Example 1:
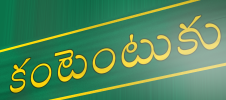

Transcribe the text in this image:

కంటెంటుకు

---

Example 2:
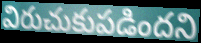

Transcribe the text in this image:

విరుచుకుపడిందని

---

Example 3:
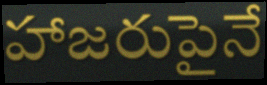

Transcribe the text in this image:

హాజరుపైనే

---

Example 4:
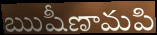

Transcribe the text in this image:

ఋషీణామపి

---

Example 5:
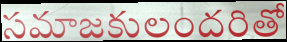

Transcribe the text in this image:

సమాజకులందరితో